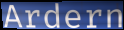
Ardern